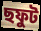
ছফুট